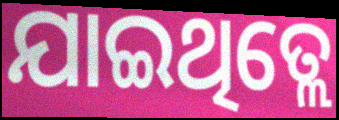
ଯାଇଥିତ୍ଲେ